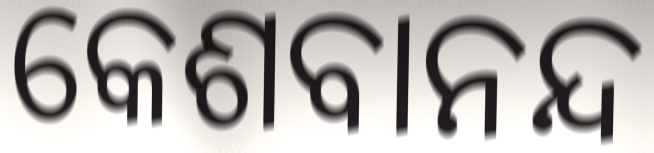
କେଶବାନନ୍ଦ